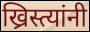
ख्रिस्त्यांनी